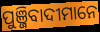
ପୁଞ୍ଜିବାଦୀମାନେ